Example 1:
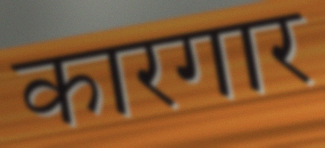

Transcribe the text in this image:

कारगार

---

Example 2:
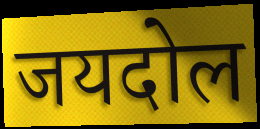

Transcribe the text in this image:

जयदोल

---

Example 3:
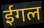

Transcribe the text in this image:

ईगल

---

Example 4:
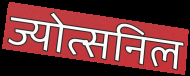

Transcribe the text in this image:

ज्योत्सनिल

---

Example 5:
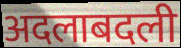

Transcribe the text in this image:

अदलाबदली